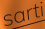
sarti